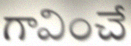
గావించే